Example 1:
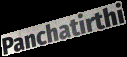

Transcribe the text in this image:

Panchatirthi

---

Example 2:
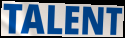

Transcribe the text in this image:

TALENT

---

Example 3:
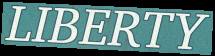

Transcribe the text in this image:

LIBERTY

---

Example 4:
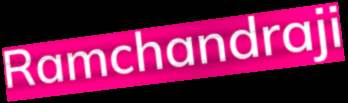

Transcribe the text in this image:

Ramchandraji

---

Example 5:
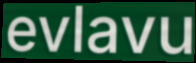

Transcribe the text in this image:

evlavu